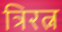
त्रिरत्न